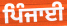
ਪਿੰਜਾਈ